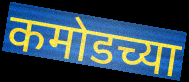
कमोडच्या